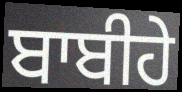
ਬਾਬੀਹੇ